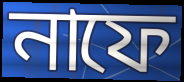
নাফে